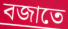
বজাতে